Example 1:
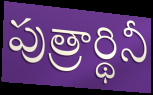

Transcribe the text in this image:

పుత్రార్థినీ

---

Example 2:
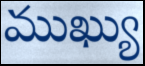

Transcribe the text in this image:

ముఖ్యు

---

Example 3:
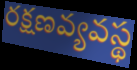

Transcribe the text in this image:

రక్షణవ్యవస్థ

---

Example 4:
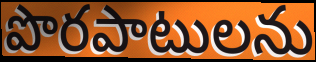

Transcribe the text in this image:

పొరపాటులను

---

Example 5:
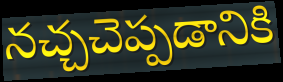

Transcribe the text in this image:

నచ్చచెప్పడానికి